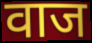
वाज